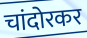
चांदोरकर